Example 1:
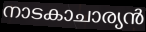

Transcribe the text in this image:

നാടകാചാര്യൻ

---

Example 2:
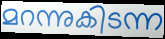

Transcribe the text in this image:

മറന്നുകിടന്ന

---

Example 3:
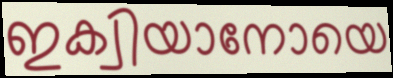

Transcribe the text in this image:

ഇക്വിയാനോയെ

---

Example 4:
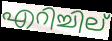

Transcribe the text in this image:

എറിച്ചില്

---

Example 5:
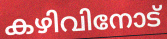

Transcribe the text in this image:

കഴിവിനോട്